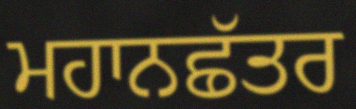
ਮਹਾਨਛੱਤਰ